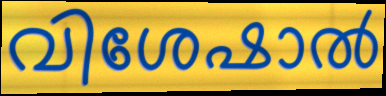
വിശേഷാൽ